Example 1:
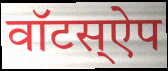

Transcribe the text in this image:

वॉटस्ऐप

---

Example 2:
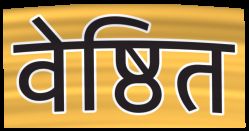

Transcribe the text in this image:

वेष्ठित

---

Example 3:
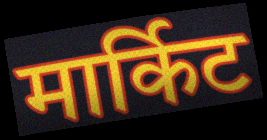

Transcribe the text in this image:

मार्किट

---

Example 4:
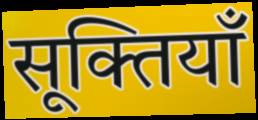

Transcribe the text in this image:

सूक्तियाँ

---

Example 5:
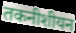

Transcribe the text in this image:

तकनीशीयन